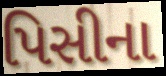
પિસીના